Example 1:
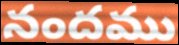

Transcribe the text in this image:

నందము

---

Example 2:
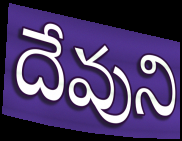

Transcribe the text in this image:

దేవుని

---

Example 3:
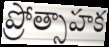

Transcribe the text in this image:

ప్రోత్సాహక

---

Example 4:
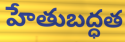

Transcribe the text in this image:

హేతుబద్ధత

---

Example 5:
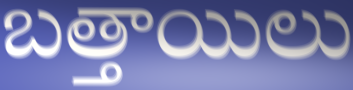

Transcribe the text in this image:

బత్తాయిలు